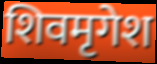
शिवमृगेश